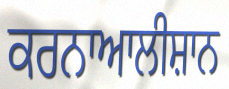
ਕਰਨਾਆਲੀਸ਼ਾਨ